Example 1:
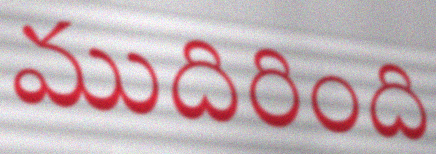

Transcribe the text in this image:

ముదిరింది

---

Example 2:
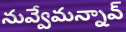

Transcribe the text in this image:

నువ్వేమన్నావ్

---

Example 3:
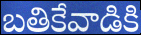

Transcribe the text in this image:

బతికేవాడికి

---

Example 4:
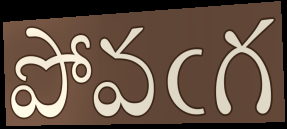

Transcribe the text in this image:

పోవఁగ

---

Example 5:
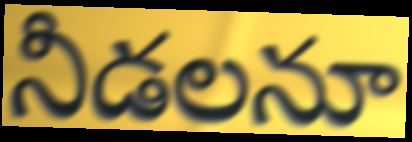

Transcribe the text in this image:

నీడలనూ